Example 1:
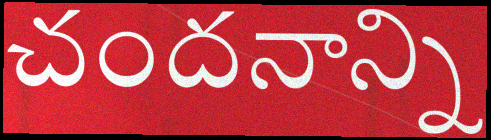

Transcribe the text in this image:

చందనాన్ని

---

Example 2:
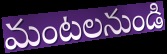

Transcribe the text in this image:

మంటలనుండి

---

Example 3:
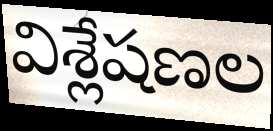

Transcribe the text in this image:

విశ్లేషణల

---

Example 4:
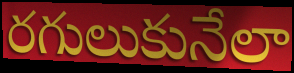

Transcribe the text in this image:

రగులుకునేలా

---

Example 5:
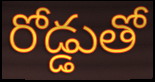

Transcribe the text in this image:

రోడ్డుతో